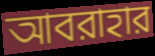
আবরাহার